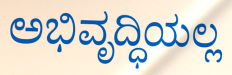
ಅಭಿವೃದ್ಧಿಯಲ್ಲ